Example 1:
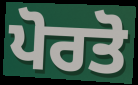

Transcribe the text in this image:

ਪੋਰਤੋ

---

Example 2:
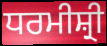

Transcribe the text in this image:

ਧਰਮੀਸ਼੍ਰੀ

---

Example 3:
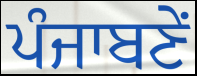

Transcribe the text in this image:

ਪੰਜਾਬਣੇਂ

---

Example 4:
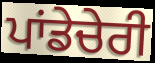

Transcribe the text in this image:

ਪਾਂਡੇਚੇਰੀ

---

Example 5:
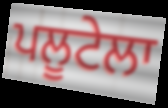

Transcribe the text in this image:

ਪਲੂਟੇਲਾ